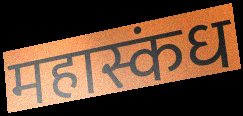
महास्कंध